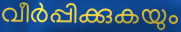
വീർപ്പിക്കുകയും